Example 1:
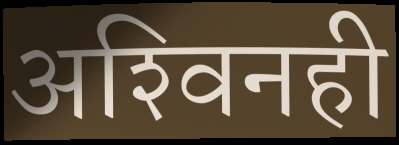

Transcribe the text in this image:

अश्विनही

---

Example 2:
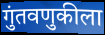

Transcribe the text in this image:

गुंतवणुकीला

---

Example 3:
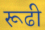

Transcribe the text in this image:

रूढी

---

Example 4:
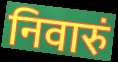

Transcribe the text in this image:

निवारुं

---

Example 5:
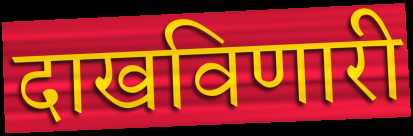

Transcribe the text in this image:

दाखविणारी